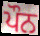
ਪੌਨ